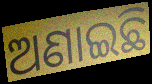
ଅଣାଇଛି